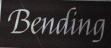
Bending